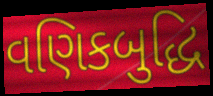
વણિકબુદ્ધિ